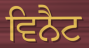
ਵਿਨੈਟ